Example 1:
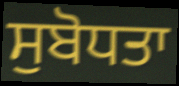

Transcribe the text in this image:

ਸੁਬੋਧਤਾ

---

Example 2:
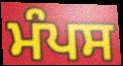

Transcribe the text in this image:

ਮੰਪਸ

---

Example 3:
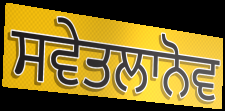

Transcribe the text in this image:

ਸਵੇਤਲਾਨੋਵ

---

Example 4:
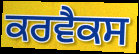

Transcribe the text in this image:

ਕਰਵੈਕਸ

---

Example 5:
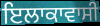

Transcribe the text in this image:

ਇਲਾਕਾਵਾਸੀ